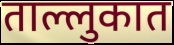
ताल्लुकात